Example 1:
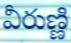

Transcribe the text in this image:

వీరుణ్ణి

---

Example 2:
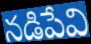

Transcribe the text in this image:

నడిపేవి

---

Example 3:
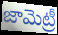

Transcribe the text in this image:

జామెట్రీ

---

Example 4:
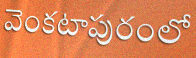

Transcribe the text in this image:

వెంకటాపురంలో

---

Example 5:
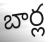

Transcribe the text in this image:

బార్ల